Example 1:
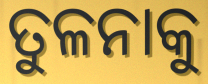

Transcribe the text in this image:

ତୁଳନାକୁ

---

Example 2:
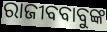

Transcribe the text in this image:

ରାଜୀବବାବୁଙ୍କ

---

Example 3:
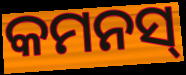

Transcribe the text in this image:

କମନସ୍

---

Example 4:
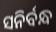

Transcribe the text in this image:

ସନିର୍ବନ୍ଧ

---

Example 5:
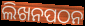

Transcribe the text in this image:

ଲିଖନପଠନ